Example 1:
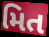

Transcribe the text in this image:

મિત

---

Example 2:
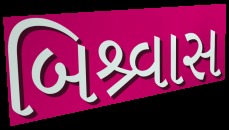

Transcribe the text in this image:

બિશ્ર્વાસ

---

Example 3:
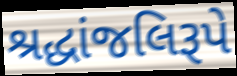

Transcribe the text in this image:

શ્રદ્ધાંજલિરૂપે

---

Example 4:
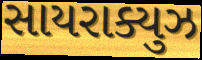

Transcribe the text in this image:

સાયરાક્યુઝ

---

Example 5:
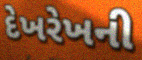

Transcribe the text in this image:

દેખરેખની